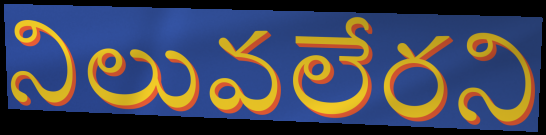
నిలువలేరని